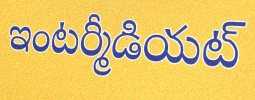
ఇంటర్మీడియట్